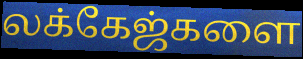
லக்கேஜ்களை